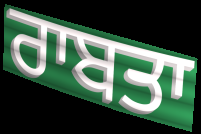
ਰਾਬਤਾ